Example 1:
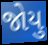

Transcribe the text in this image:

જોયુ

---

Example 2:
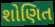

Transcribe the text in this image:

શોણિત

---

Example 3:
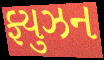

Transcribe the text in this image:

ફ્યુઝન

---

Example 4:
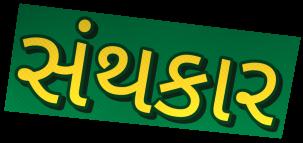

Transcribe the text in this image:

સંથકાર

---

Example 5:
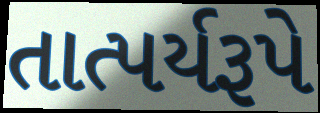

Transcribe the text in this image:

તાત્પર્યરૂપે